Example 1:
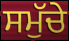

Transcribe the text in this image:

ਸਮੁੱਚੇ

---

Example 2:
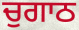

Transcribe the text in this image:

ਚੁਗਾਠ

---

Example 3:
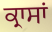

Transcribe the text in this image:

ਕ੍ਰਾਸਾਂ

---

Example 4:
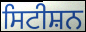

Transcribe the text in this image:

ਸਿਟੀਸ਼ਨ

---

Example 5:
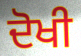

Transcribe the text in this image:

ਦੋਖੀ